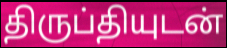
திருப்தியுடன்